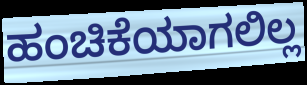
ಹಂಚಿಕೆಯಾಗಲಿಲ್ಲ